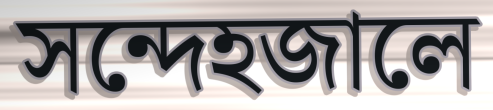
সন্দেহজালে